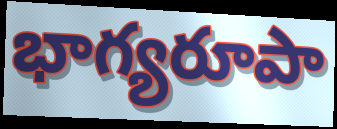
భాగ్యరూపా